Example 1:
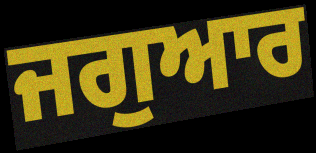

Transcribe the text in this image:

ਜਗੁਆਰ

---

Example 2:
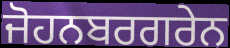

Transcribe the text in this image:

ਜੋਹਨਬਰਗਰੇਨ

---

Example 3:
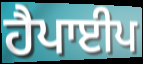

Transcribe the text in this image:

ਹੈਪਾਈਪ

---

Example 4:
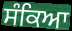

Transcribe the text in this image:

ਸੰਕਿਆ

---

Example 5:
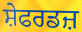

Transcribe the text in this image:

ਸ਼ੇਫਰਡਜ਼